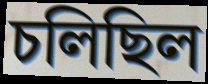
চলিছিল